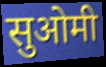
सुओमी